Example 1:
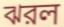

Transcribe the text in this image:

ঝরল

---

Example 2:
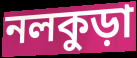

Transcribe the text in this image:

নলকুড়া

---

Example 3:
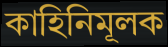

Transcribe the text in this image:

কাহিনিমূলক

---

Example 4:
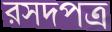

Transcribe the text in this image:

রসদপত্র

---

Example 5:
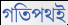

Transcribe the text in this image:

গতিপথই